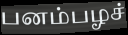
பனம்பழச்